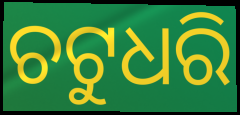
ଚଟୁଧରି